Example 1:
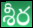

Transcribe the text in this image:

శీర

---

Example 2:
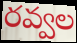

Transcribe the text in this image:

రవ్వల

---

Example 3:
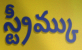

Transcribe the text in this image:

స్ట్రీమ్కు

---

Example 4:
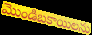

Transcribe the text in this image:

మొండిబకాయిలను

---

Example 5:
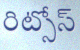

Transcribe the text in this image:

రిట్సోస్